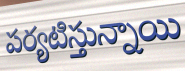
పర్యటిస్తున్నాయి